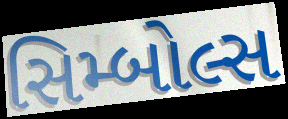
સિમ્બોલ્સ